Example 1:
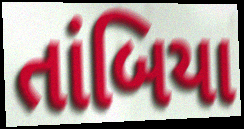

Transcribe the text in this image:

તાંબિયા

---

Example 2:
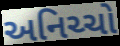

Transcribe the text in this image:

અનિચ્ચો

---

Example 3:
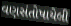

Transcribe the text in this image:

વણસંતોષાયેલી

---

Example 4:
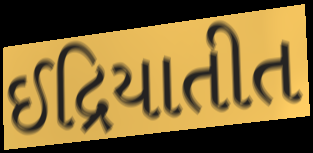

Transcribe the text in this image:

ઈદ્રિયાતીત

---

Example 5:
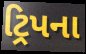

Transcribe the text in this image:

ટ્રિપના